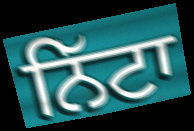
ਨਿੱਟਾ